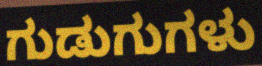
ಗುಡುಗುಗಳು